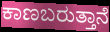
ಕಾಣಬರುತ್ತಾನೆ